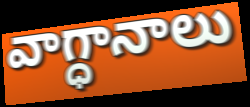
వాగ్ధానాలు